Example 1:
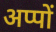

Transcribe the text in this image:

अप्पों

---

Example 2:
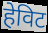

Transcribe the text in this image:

हेविट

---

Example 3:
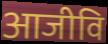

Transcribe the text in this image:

आजीवि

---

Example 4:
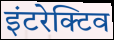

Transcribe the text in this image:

इंटरेक्टिव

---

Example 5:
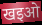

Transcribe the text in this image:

खइओ